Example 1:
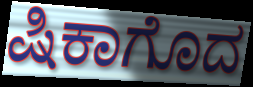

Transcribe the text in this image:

ಷಿಕಾಗೊದ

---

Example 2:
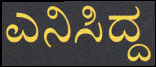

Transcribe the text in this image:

ಎನಿಸಿದ್ದ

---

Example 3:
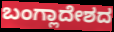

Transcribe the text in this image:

ಬಂಗ್ಲಾದೇಶದ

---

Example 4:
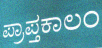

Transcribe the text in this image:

ಪ್ರಾಪ್ತಕಾಲಂ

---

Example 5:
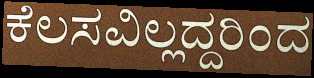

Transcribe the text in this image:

ಕೆಲಸವಿಲ್ಲದ್ದರಿಂದ